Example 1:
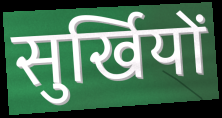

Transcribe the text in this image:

सुर्खियों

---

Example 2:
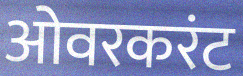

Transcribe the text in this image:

ओवरकरंट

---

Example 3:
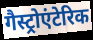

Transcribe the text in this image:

गैस्ट्रोएंटेरिक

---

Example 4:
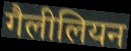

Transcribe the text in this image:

गैलीलियन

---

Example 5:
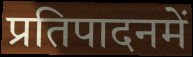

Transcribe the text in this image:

प्रतिपादनमें